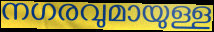
നഗരവുമായുള്ള